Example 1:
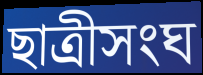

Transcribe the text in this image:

ছাত্রীসংঘ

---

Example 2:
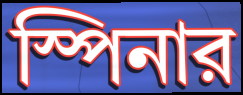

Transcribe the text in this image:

স্পিনার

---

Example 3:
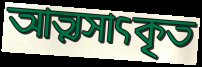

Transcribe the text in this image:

আত্মসাৎকৃত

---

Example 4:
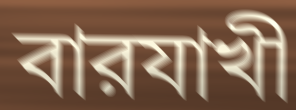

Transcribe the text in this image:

বারযাখী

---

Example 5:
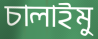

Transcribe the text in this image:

চালাইমু